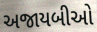
અજાયબીઓ